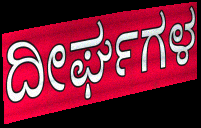
ದೀರ್ಘಗಳ